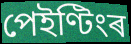
পেইণ্টিংৰ